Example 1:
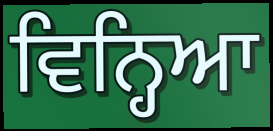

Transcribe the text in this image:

ਵਿਨ੍ਹਿਆ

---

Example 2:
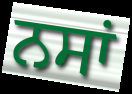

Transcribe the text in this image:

ਨਸਾਂ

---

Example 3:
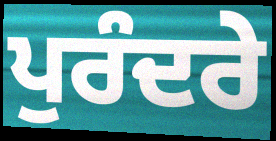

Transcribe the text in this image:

ਪੁਰੰਦਰੇ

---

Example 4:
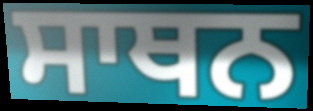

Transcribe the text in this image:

ਸਾਥਨ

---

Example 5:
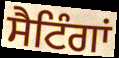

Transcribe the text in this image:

ਸੈਟਿੰਗਾਂ